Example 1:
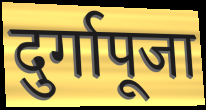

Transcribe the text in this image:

दुर्गापूजा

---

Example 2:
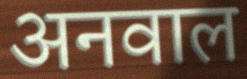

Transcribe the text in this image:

अनवाल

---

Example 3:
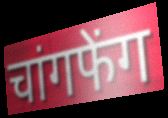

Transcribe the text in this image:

चांगफेंग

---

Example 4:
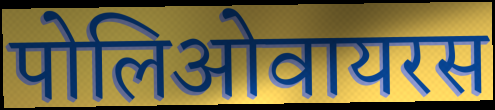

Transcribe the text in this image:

पोलिओवायरस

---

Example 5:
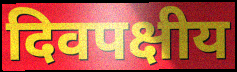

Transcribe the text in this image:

दिवपक्षीय